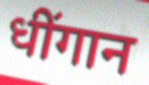
धींगान